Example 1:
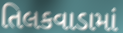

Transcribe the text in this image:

તિલકવાડામાં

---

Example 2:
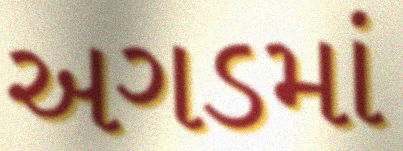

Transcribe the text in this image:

અગડમાં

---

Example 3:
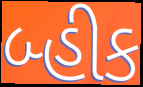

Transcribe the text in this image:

બ્હીક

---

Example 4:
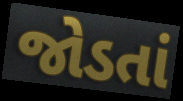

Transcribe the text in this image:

જોડતાં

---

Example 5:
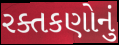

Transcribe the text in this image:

રક્તકણોનું